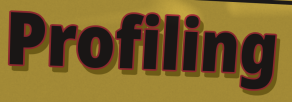
Profiling